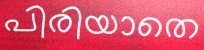
പിരിയാതെ